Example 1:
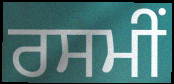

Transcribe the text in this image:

ਰਸਮੀਂ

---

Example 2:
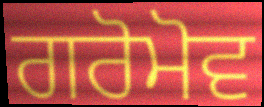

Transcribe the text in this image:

ਗਰੋਮੋਵ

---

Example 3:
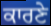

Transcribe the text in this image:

ਕਾਰਣੇ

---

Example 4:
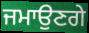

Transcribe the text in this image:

ਜਮਾਉਣਗੇ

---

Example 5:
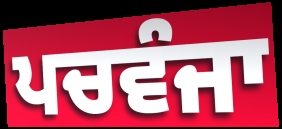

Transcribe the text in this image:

ਪਚਵੰਜਾ